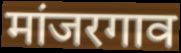
मांजरगाव